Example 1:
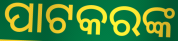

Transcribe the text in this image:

ପାଟକରଙ୍କ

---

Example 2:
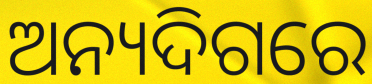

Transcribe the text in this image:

ଅନ୍ୟଦିଗରେ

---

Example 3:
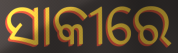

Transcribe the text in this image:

ସାକୀରେ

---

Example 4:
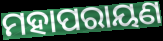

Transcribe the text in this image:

ମହାପରାୟଣ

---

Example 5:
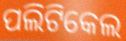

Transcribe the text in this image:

ପଲିଟିକେଲ